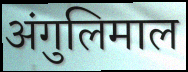
अंगुलिमाल